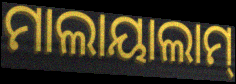
ମାଲାୟାଲାମ୍